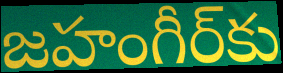
జహంగీర్‌కు